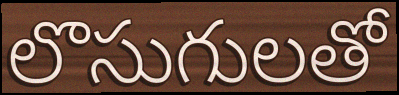
లొసుగులతో